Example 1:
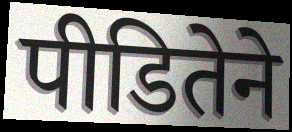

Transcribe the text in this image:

पीडितेने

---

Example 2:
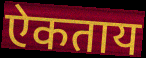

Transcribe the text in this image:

ऐकताय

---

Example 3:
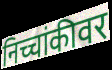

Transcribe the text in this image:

निच्चांकीवर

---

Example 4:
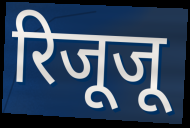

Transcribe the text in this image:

रिजूजू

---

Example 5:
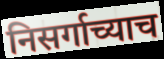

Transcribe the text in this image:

निसर्गाच्याच